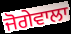
ਜੋਗੇਵਾਲਾ